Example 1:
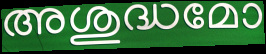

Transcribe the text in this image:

അശുദ്ധമോ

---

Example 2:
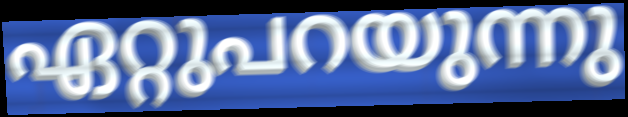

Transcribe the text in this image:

ഏറ്റുപറയുന്നു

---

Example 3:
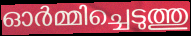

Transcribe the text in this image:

ഓർമ്മിച്ചെടുത്തു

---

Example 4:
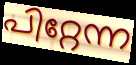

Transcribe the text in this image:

പിറ്റേന്ന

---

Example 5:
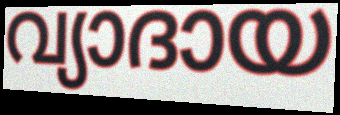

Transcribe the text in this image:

വ്യാദായ